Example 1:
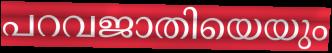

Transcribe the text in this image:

പറവജാതിയെയും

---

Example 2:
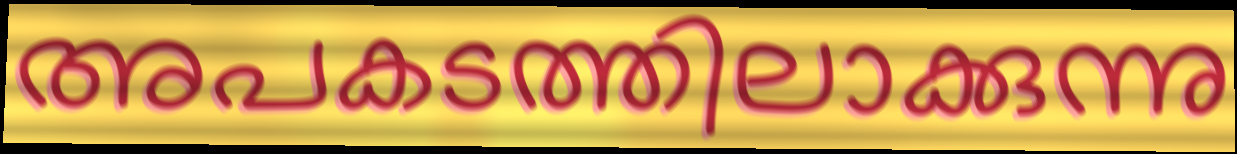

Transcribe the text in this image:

അപകടത്തിലാക്കുന്നു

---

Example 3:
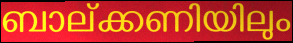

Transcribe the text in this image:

ബാല്ക്കണിയിലും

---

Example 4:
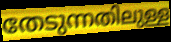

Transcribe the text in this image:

തേടുന്നതിലുള്ള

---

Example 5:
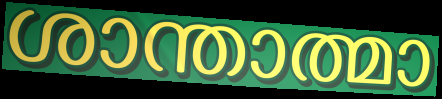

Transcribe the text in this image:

ശാന്താത്മാ